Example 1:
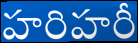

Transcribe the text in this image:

హరిహరీ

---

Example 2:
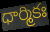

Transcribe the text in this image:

ధార్మికః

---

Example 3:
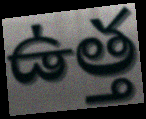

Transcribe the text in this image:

ఉత్త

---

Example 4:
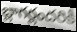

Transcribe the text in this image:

బ్లాగర్లందరికీ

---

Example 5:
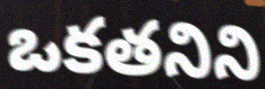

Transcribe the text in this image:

ఒకతనిని